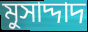
মুসাদ্দাদ